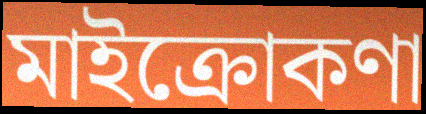
মাইক্রোকণা